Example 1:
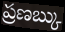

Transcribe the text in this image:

ప్రణబ్కు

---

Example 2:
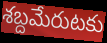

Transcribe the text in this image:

శబ్దమేరుటకు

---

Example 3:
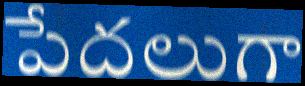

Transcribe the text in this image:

పేదలుగా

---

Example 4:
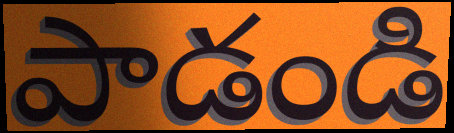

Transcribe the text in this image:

పాడండి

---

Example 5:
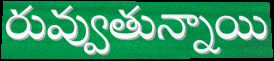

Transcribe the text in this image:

రువ్వుతున్నాయి